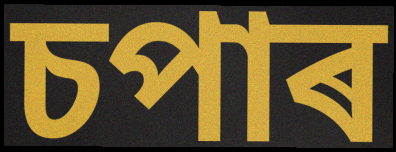
চপাৰ